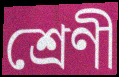
শ্ৰেণী